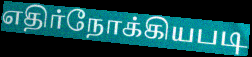
எதிர்நோக்கியபடி